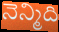
నెన్మిది